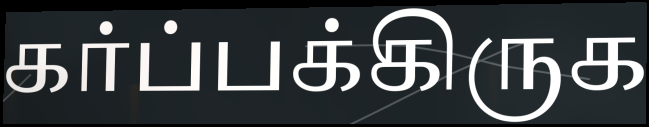
கர்ப்பக்கிருக